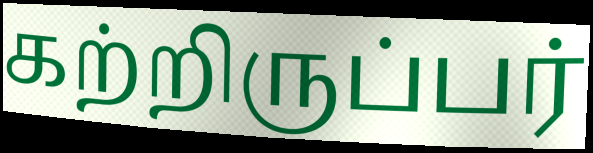
கற்றிருப்பர்